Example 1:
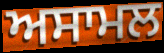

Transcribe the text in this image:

ਅਸਾਮਲ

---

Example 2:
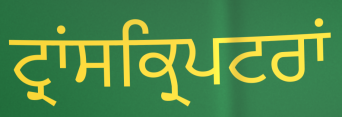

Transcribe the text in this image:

ਟ੍ਰਾਂਸਕ੍ਰਿਪਟਰਾਂ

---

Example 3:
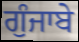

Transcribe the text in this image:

ਗੁੰਜਾਬੇ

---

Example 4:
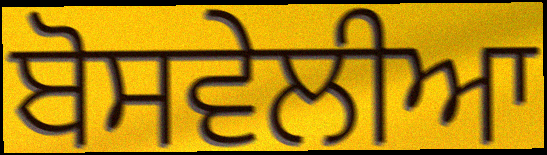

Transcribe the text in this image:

ਬੋਸਵੇਲੀਆ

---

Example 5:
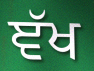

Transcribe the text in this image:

ਞੱਖ